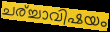
ചര്ച്ചാവിഷയം